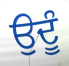
ਉਦੂੰ